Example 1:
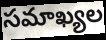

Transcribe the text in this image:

సమాఖ్యల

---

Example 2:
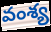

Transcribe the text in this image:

వంశ్య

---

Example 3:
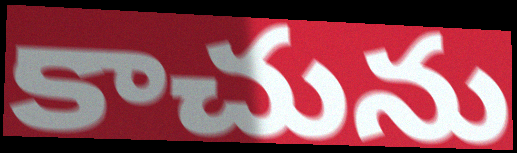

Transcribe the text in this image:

కాచును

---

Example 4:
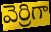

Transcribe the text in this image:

వెర్రిగా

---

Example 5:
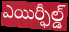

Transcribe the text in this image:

ఎయిర్ఫీల్డ్